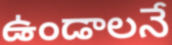
ఉండాలనే